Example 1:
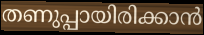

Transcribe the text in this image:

തണുപ്പായിരിക്കാൻ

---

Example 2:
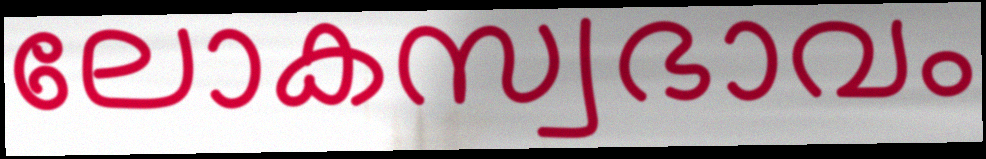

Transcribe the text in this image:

ലോകസ്വഭാവം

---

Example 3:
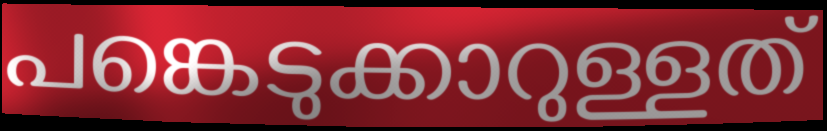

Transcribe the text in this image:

പങ്കെടുക്കാറുള്ളത്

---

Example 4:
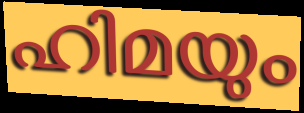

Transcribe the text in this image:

ഹിമയും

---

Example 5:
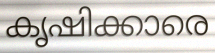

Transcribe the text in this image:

കൃഷിക്കാരെ